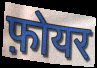
फ़ोयर